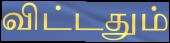
விட்டதும்